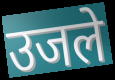
उजले